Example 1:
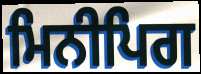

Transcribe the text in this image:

ਮਿਨੀਪਿਗ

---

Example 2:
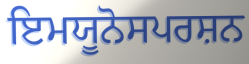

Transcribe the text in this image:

ਇਮਯੂਨੋਸਪਰਸ਼ਨ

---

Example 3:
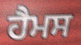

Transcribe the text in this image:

ਹੈਮਸ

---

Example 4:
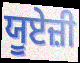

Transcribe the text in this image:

ਯੂਏਜ਼ੀ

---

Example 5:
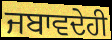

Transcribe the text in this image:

ਜਬਾਵਦੇਹੀ